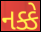
નક્કે